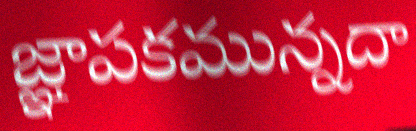
జ్ఞాపకమున్నదా